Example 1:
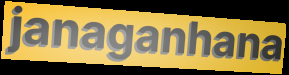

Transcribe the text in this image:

janaganhana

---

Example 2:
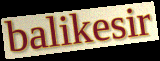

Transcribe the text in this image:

balikesir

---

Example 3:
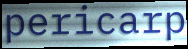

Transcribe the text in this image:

pericarp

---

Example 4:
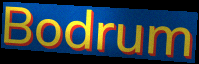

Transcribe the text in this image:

Bodrum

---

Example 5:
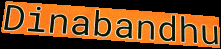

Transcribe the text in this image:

Dinabandhu